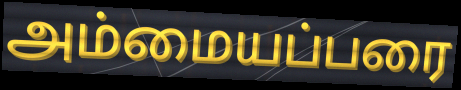
அம்மையப்பரை